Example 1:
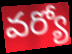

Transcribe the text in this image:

వర్యో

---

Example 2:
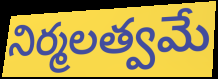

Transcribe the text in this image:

నిర్మలత్వమే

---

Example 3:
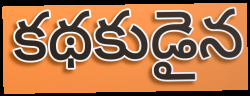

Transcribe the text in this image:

కథకుడైన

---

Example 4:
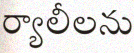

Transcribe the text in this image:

ర్యాలీలను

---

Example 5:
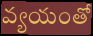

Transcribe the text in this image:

వ్యయంతో